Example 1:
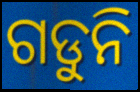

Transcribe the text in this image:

ଗଡୁନି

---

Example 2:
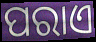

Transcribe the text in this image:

ପରାଏ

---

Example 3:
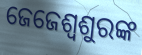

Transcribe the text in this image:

ଜେଜେଶ୍ୱଶୁରଙ୍କ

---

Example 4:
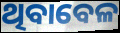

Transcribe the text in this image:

ଥିବାବେଳ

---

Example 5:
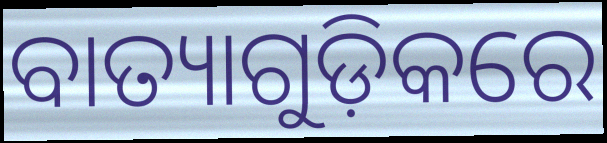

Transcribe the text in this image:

ବାତ୍ୟାଗୁଡ଼ିକରେ